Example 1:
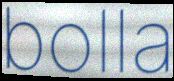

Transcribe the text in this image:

bolla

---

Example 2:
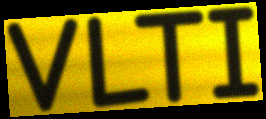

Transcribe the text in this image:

VLTI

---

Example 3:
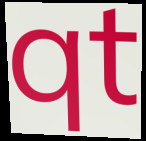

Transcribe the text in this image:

qt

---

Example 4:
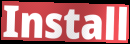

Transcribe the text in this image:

Install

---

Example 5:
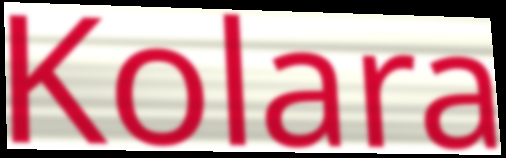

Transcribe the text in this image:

Kolara